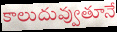
కాలుదువ్వుతూనే